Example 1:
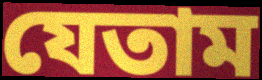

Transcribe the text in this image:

যেতাম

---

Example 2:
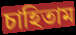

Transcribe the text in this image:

চাহিতাম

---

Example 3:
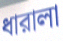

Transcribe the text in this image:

ধারালা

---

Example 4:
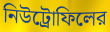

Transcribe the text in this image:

নিউট্রোফিলের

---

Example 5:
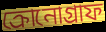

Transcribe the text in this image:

ক্রোনোগ্রাফ